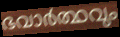
ഭവാർത്ഥവും